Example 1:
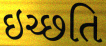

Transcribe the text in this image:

ઇચ્છતિ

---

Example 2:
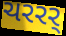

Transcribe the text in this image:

ચરરર્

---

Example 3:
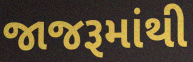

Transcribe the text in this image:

જાજરૂમાંથી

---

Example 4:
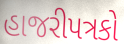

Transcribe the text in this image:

હાજરીપત્રકો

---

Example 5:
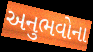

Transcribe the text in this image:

અનુભવોના